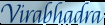
Virabhadra